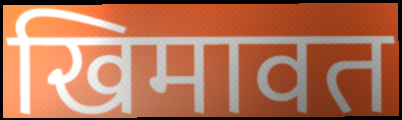
खिमावत